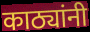
काठ्यांनी